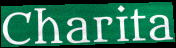
Charita